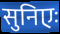
सुनिएः